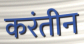
करंतीन